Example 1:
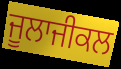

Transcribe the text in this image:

ਜੂਲਾਜੀਕਲ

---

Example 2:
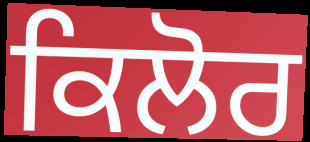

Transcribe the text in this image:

ਕਿਲੋਰ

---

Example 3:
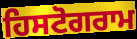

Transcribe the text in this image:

ਹਿਸਟੋਗਰਾਮ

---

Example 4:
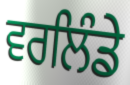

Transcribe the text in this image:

ਵਰਲਿੰਡੇ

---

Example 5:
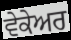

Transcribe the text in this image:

ਵੇਕੇਅਰ